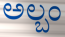
ಅಲ್ಬಂ